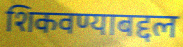
शिकवण्याबद्दल